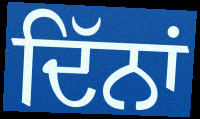
ਦਿੱਨਾਂ